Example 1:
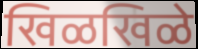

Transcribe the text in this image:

खिळखिळे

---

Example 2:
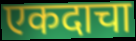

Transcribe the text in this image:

एकदाचा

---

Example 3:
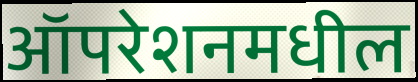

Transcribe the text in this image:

ऑपरेशनमधील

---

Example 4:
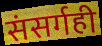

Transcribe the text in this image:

संसर्गही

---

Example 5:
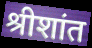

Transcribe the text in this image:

श्रीशांत